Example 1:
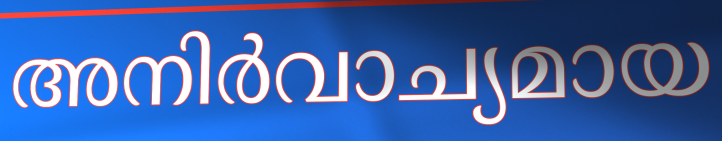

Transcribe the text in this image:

അനിർവാച്യമായ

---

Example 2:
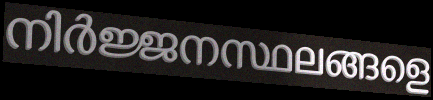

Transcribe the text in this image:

നിർജ്ജനസ്ഥലങ്ങളെ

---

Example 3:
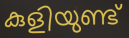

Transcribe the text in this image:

കുളിയുണ്ട്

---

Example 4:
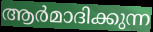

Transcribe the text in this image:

ആർമാദിക്കുന്ന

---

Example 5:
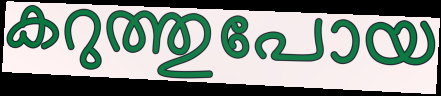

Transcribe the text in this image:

കറുത്തുപോയ